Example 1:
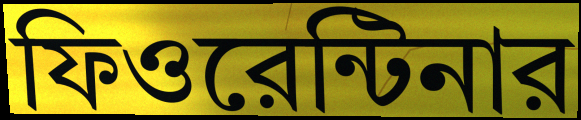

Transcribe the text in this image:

ফিওরেন্টিনার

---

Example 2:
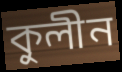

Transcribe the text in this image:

কুলীন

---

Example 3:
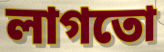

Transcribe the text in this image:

লাগতো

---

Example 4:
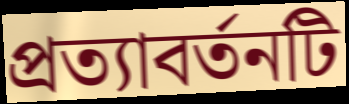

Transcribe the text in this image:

প্রত্যাবর্তনটি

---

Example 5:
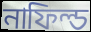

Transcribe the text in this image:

নাফিল্ড